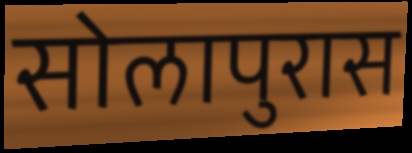
सोलापुरास